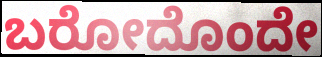
ಬರೋದೊಂದೇ